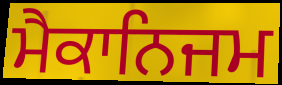
ਮੈਕਾਨਿਜਮ